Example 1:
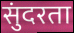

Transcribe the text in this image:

सुंदरता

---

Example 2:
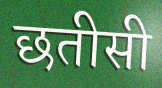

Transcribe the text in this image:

छतीसी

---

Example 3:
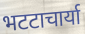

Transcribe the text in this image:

भटटाचार्या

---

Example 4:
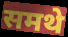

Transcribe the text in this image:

समथे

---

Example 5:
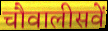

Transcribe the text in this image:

चौवालीसवें